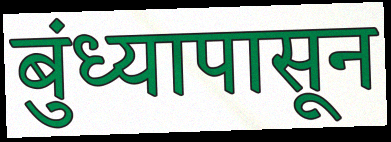
बुंध्यापासून